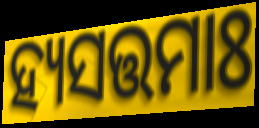
ହ୍ୟସତ୍ତମାଃ